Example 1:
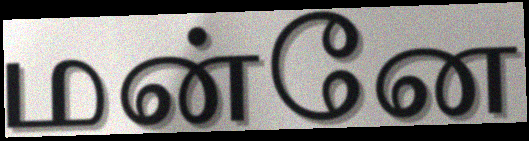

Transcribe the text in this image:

மன்னே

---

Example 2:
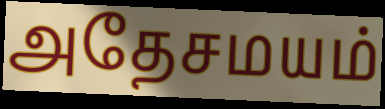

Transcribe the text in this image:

அதேசமயம்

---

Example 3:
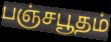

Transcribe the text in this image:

பஞ்சபூதம்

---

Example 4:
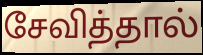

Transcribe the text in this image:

சேவித்தால்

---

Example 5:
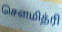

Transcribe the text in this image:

சௌமித்ரி